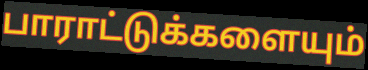
பாராட்டுக்களையும்